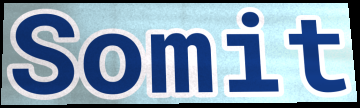
Somit